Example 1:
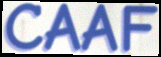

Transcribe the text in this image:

CAAF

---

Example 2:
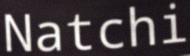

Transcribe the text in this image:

Natchi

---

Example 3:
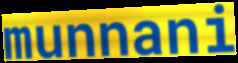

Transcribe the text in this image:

munnani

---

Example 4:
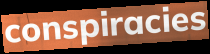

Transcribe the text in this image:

conspiracies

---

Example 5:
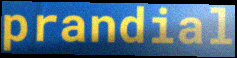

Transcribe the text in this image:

prandial